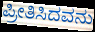
ಪ್ರೀತಿಸಿದವನು